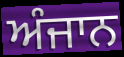
ਅੰਜਾਨ